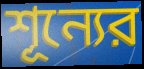
শূন্যের